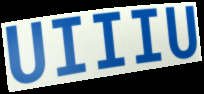
UIIIU